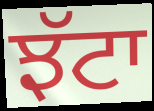
ਝੱਟਾ